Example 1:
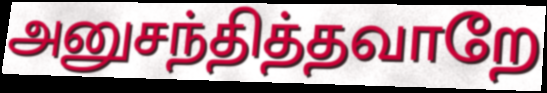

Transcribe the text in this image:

அனுசந்தித்தவாறே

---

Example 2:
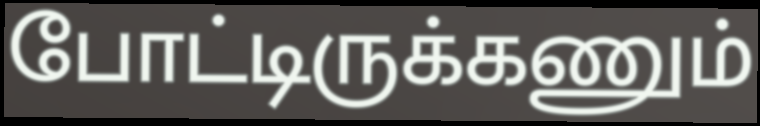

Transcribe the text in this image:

போட்டிருக்கணும்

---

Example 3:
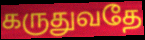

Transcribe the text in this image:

கருதுவதே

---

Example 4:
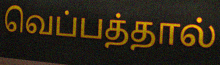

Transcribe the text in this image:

வெப்பத்தால்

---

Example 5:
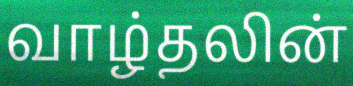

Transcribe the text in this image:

வாழ்தலின்